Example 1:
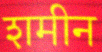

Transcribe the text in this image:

शमीन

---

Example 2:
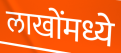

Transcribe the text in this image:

लाखोंमध्ये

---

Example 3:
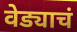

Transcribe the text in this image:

वेड्याचं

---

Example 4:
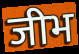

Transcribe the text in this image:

जीभ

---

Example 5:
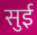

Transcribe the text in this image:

सुई